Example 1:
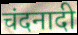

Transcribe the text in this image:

चंदनादी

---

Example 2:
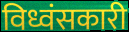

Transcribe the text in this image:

विध्वंसकारी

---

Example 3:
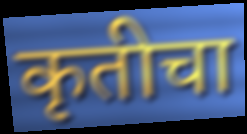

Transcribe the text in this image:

कृतीचा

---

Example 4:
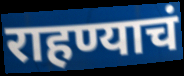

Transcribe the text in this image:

राहण्याचं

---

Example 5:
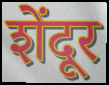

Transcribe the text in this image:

शेंदूर